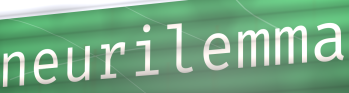
neurilemma